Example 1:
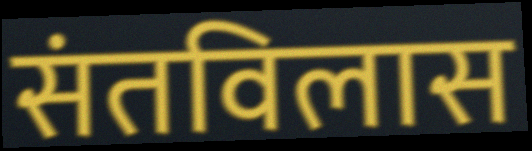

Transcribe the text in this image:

संतविलास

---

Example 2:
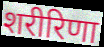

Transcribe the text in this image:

शरीरिणा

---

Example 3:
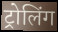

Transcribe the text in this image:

ट्रोलिंग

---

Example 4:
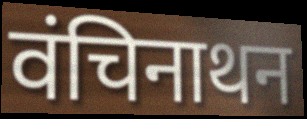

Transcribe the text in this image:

वंचिनाथन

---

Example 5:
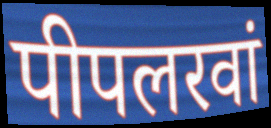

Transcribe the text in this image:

पीपलरवां